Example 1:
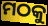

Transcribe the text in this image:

ମଠକୁ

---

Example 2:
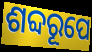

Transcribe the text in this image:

ଶବ୍ଦରୂପେ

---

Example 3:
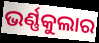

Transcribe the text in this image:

ଭର୍ଣ୍ଣକୁଲାର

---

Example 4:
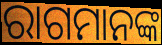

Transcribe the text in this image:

ରାଗମାନଙ୍କ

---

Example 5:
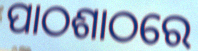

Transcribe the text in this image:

ପାଠଶାଠରେ